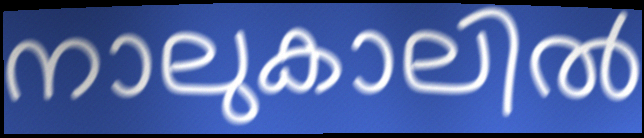
നാലുകാലിൽ